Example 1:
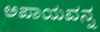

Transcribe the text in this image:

ಅಪಾಯವನ್ನ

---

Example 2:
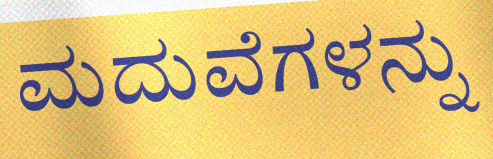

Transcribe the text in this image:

ಮದುವೆಗಳನ್ನು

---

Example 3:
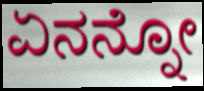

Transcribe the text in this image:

ಏನನ್ನೋ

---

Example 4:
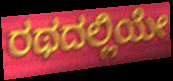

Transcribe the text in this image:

ರಥದಲ್ಲಿಯೇ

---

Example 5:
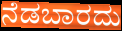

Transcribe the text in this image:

ನೆಡಬಾರದು